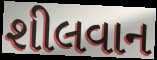
શીલવાન